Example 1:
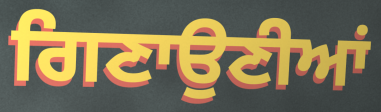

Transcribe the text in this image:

ਗਿਣਾਉਣੀਆਂ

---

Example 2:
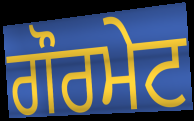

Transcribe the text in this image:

ਗੌਰਮੇਟ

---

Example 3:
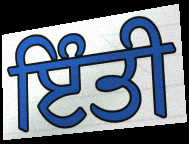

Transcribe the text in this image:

ਇੰਤੀ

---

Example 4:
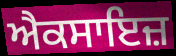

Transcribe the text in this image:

ਐਕਸਾਇਜ਼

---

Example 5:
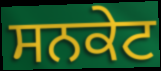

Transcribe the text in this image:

ਸਨਕੇਟ